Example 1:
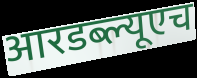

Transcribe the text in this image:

आरडब्ल्यूएच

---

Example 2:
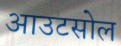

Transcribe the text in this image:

आउटसोल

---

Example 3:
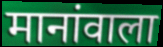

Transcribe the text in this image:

मानांवाला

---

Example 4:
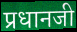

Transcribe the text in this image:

प्रधानजी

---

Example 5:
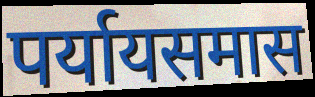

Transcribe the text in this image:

पर्यायसमास